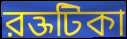
রক্তটিকা